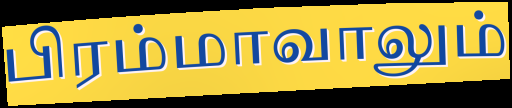
பிரம்மாவாலும்